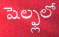
షెల్ఫ్లలో